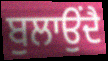
ਬੁਲਾਉਂਦੈ